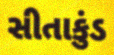
સીતાકુંડ